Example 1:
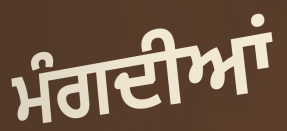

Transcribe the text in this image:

ਮੰਗਦੀਆਂ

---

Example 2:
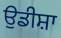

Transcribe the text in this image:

ਉਡੀਸ਼ਾ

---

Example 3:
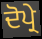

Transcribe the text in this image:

ਦੋਪ੍ਰੇ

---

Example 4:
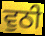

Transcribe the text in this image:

ਵੁਠੀ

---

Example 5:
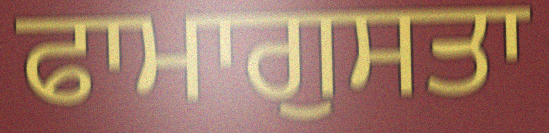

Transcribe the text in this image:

ਫਾਮਾਗੁਸਤਾ